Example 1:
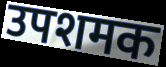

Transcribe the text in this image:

उपशमक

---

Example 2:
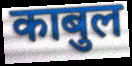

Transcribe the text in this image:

काबुल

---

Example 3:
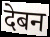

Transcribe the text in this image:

देबन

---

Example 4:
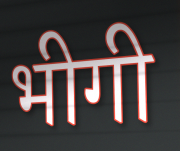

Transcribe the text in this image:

भीगी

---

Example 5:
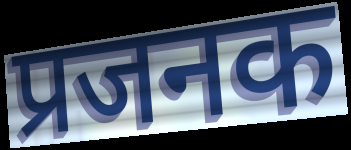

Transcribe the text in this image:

प्रजनक